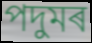
পদুমৰ